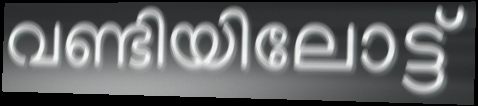
വണ്ടിയിലോട്ട്